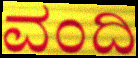
ವಂದಿ